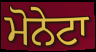
ਮੋਨੇਟਾ